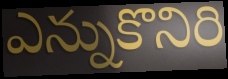
ఎన్నుకొనిరి